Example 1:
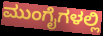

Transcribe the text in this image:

ಮುಂಗೈಗಳಲ್ಲಿ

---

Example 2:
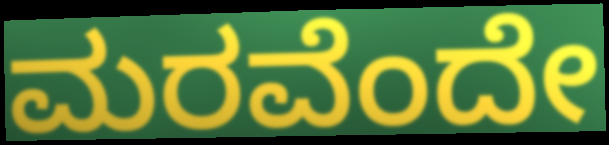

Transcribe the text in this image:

ಮರವೆಂದೇ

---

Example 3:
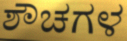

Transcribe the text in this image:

ಶೌಚಗಳ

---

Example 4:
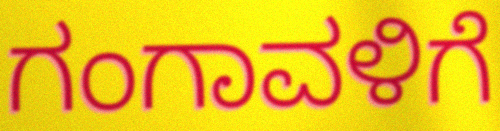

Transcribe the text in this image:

ಗಂಗಾವಳಿಗೆ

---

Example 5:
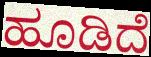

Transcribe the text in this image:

ಹೂಡಿದೆ